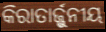
କିରାତାର୍ଜ୍ଜୁନୀୟ